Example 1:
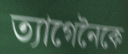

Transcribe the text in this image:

ত্যাগেনৈকে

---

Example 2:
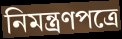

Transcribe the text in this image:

নিমন্ত্রণপত্রে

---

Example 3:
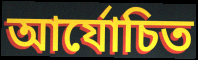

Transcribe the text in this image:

আর্যোচিত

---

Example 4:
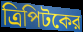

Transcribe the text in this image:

ত্রিপিটকের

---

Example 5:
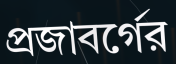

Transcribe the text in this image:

প্রজাবর্গের